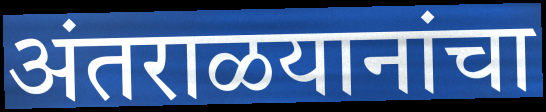
अंतराळयानांचा